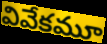
వివేకమూ